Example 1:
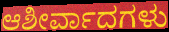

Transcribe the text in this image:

ಆಶೀರ್ವಾದಗಳು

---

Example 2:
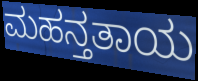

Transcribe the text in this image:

ಮಹನ್ತತಾಯ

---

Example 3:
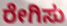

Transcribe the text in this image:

ರೇಗಿಸು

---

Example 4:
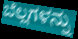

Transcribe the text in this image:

ಬೆಲ್ಲಗಳನ್ನು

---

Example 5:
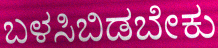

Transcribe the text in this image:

ಬಳಸಿಬಿಡಬೇಕು